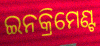
ଇନକ୍ରିମେଣ୍ଟ